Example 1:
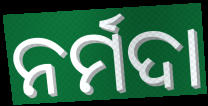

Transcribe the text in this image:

ନର୍ମଦା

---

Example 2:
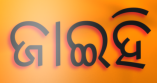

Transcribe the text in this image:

ଜାଇହି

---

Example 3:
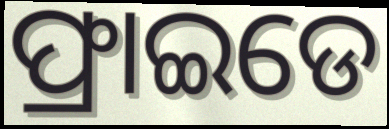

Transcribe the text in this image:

ଫ୍ରାଇଡେ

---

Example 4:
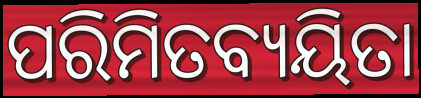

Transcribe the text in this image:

ପରିମିତବ୍ୟୟିତା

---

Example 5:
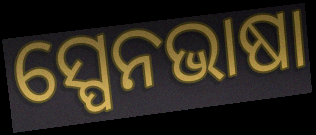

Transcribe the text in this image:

ସ୍ପେନଭାଷା